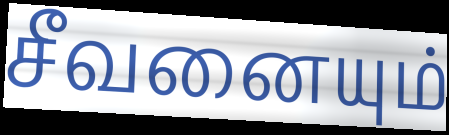
சீவனையும்